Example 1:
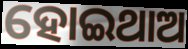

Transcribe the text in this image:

ହୋଇଥାଅ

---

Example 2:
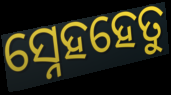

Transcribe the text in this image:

ସ୍ନେହହେତୁ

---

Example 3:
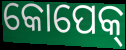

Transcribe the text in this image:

କୋପେକ୍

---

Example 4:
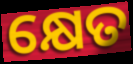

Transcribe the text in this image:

କ୍ଷେତ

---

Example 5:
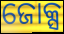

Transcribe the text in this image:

ଜୋକ୍ସ